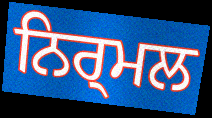
ਨਿਰ੍ਮਲ